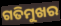
ଗତିମୁଖର